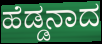
ಹೆಡ್ಡನಾದ